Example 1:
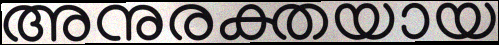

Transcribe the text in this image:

അനുരക്തയായ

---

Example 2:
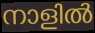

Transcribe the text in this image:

നാളിൽ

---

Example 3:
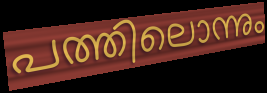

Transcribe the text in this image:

പത്തിലൊന്നും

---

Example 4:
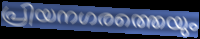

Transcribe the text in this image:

പ്രിയനഗരത്തെയും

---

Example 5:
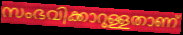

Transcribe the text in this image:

സംഭവിക്കാറുള്ളതാണ്